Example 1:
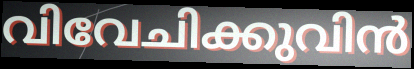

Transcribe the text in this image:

വിവേചിക്കുവിൻ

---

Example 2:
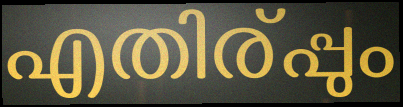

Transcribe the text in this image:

എതിര്പ്പും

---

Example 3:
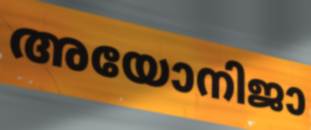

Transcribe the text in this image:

അയോനിജാ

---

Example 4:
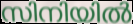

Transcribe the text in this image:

സിനിയിൽ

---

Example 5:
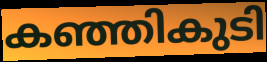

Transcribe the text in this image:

കഞ്ഞികുടി